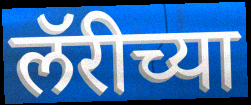
लॅरीच्या